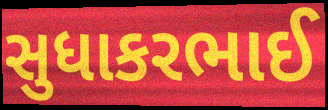
સુધાકરભાઈ